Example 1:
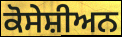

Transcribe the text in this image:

ਕੋਸੇਸ਼ੀਅਨ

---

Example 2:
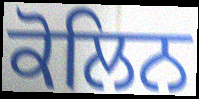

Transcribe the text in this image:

ਕੋਲਿਨ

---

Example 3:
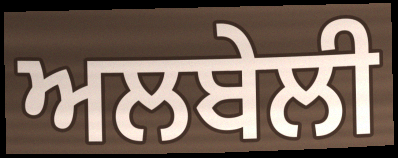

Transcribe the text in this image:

ਅਲਬੇਲੀ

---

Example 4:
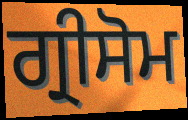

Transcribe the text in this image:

ਗ੍ਰੀਸੋਮ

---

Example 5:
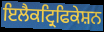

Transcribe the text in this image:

ਇਲੈਕਟ੍ਰਿਫਿਕੇਸ਼ਨ